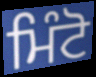
ਮਿੰਟੋ